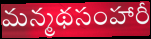
మన్మథసంహారీ